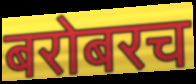
बरोबरच